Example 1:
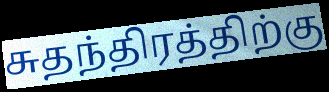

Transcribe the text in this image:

சுதந்திரத்திற்கு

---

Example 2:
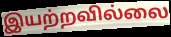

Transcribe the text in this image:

இயற்றவில்லை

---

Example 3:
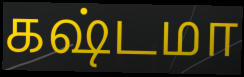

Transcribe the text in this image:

கஷ்டமா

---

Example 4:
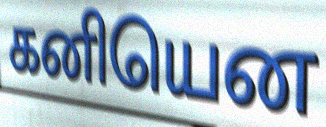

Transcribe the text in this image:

கனியென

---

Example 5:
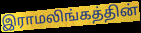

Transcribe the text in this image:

இராமலிங்கத்தின்